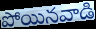
పోయినవాడి